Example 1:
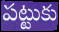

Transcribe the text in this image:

పట్టుకు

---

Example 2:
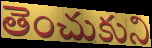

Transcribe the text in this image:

తెంచుకుని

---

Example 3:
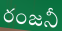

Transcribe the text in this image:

రంజనీ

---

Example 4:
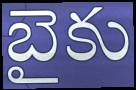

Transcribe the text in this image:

బైకు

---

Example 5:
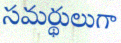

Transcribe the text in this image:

సమర్థులుగా